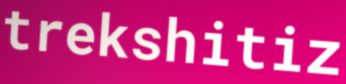
trekshitiz